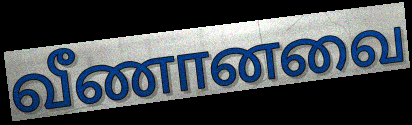
வீணானவை